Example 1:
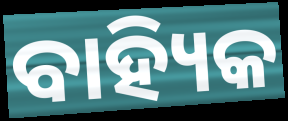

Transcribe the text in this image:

ବାହ୍ୟିକ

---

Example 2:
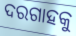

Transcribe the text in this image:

ଦରଗାହକୁ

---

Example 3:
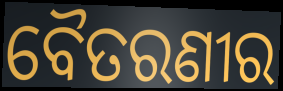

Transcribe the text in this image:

ବୈତରଣୀର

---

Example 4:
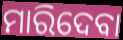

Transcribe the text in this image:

ମାରିଦେବା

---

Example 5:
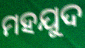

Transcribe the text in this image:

ମହଯୁଦ